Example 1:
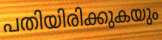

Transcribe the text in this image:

പതിയിരിക്കുകയും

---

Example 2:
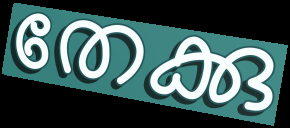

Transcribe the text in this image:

തേക്കു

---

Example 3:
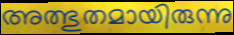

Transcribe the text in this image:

അത്ഭുതമായിരുന്നു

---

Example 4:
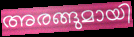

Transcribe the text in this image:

അരങ്ങുമായി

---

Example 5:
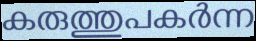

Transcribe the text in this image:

കരുത്തുപകർന്ന